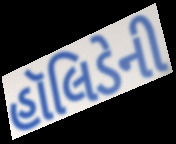
હૉલિડેની